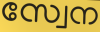
സ്വേന